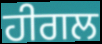
ਹੀਗਲ